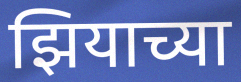
झियाच्या